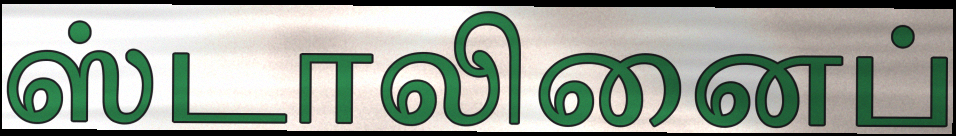
ஸ்டாலினைப்